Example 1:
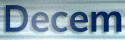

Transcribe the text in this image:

Decem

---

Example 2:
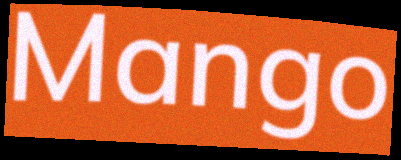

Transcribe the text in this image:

Mango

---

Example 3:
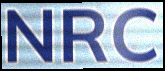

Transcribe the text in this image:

NRC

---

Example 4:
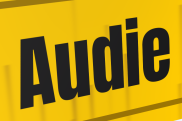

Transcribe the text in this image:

Audie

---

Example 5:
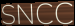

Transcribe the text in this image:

SNCC